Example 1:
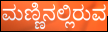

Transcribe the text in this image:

ಮಣ್ಣಿನಲ್ಲಿರುವ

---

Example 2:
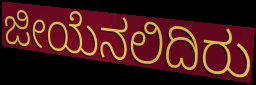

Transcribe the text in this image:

ಜೀಯೆನಲಿದಿರು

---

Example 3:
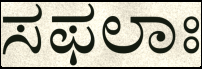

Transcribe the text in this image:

ಸಫಲಾಃ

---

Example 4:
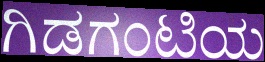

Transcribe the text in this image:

ಗಿಡಗಂಟಿಯ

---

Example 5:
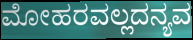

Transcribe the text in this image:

ಮೋಹರವಲ್ಲದನ್ಯವ